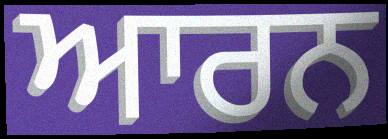
ਆਰਨ